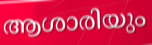
ആശാരിയും